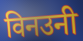
विनउनी